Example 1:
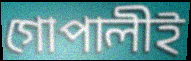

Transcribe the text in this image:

গোপালীই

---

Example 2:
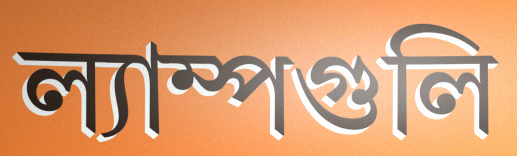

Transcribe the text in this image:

ল্যাম্পগুলি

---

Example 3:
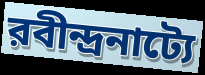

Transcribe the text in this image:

রবীন্দ্রনাট্যে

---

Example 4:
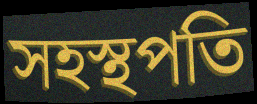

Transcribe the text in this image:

সহস্থপতি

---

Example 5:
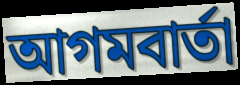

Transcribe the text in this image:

আগমবার্তা